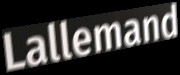
Lallemand